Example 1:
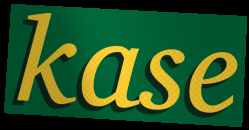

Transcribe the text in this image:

kase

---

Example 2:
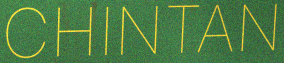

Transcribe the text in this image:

CHINTAN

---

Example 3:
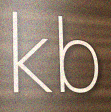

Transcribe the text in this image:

kb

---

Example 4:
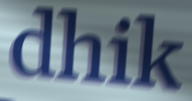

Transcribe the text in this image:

dhik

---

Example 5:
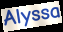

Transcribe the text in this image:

Alyssa